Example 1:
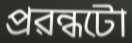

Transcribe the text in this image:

প্ৰৱন্ধটো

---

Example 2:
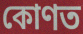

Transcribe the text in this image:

কোণত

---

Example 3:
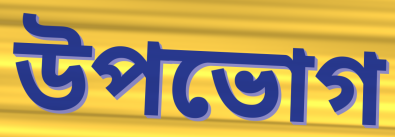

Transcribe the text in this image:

উপভোগ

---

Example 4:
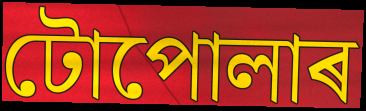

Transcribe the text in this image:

টোপোলাৰ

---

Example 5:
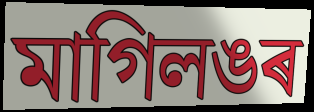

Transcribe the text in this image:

মাগিলঙৰ